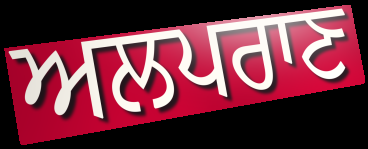
ਅਲਪਰਾਣ